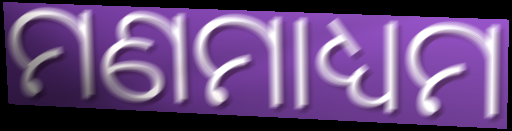
ମଣମାଧ୍ୟମ